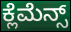
ಕ್ಲೆಮೆನ್ಸ್